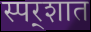
स्पर्शात